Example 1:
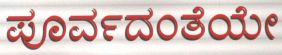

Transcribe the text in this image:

ಪೂರ್ವದಂತೆಯೇ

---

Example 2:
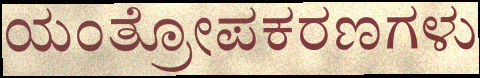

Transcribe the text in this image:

ಯಂತ್ರೋಪಕರಣಗಳು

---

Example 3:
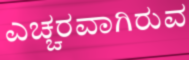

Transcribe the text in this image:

ಎಚ್ಚರವಾಗಿರುವ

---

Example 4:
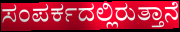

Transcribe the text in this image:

ಸಂಪರ್ಕದಲ್ಲಿರುತ್ತಾನೆ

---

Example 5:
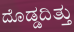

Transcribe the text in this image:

ದೊಡ್ಡದಿತ್ತು